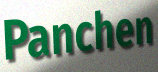
Panchen